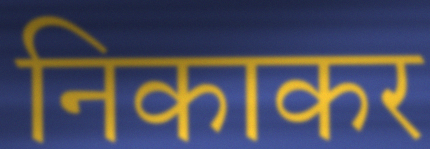
निकाकर